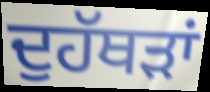
ਦੁਹੱਥੜਾਂ